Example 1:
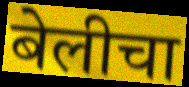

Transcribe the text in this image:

बेलीचा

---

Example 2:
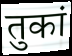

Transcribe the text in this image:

तुकां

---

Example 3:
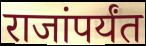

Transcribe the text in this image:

राजांपर्यंत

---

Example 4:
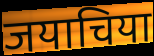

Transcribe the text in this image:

जयाचिया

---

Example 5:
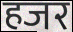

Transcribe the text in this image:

हजर